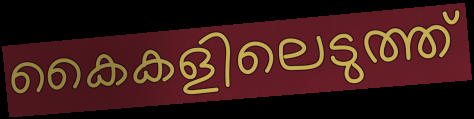
കൈകളിലെടുത്ത്